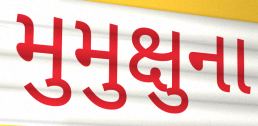
મુમુક્ષુના